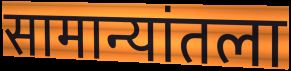
सामान्यांतला